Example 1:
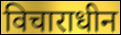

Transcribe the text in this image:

विचाराधीन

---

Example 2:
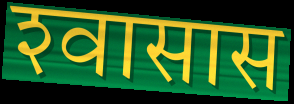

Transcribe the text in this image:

श्वासास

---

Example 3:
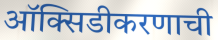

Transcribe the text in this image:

ऑक्सिडीकरणाची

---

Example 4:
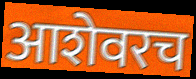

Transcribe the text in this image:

आशेवरच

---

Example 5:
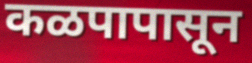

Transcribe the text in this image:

कळपापासून